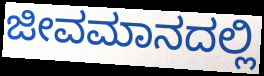
ಜೀವಮಾನದಲ್ಲಿ